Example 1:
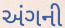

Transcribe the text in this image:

અંગની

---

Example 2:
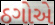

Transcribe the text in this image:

ઠગોએ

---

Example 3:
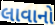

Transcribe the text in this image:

લાવાનો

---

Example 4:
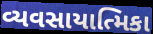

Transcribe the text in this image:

વ્યવસાયાત્મિકા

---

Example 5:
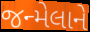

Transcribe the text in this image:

જન્મેલાને